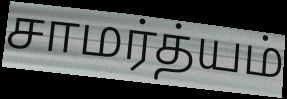
சாமர்த்யம்